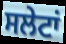
ਸਲੇਟਾਂ